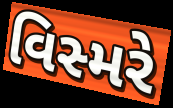
વિસ્મરે